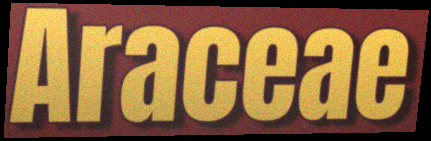
Araceae